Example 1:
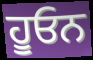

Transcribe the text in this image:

ਹੂਓਨ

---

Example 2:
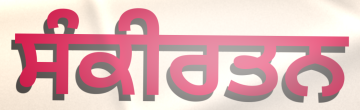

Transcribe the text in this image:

ਸੰਕੀਰਤਨ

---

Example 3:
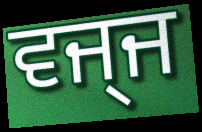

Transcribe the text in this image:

ਵਜ੍ਜ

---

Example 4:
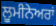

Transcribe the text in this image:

ਲੂਮੀਨੇਅਰਾਂ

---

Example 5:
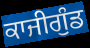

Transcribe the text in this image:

ਕਾਜੀਗੁੰਡ